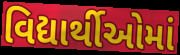
વિદ્યાર્થીઓમાં